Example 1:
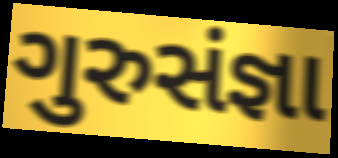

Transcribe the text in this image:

ગુરુસંજ્ઞા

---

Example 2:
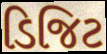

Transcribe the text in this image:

ડિજિટ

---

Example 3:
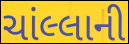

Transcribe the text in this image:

ચાંલ્લાની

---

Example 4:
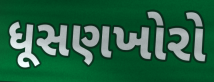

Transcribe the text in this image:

ધૂસણખોરો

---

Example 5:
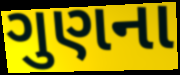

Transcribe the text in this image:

ગુણના